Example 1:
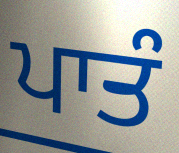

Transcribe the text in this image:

ਪਾਤੰ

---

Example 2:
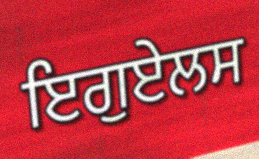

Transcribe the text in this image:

ਇਗੁਏਲਸ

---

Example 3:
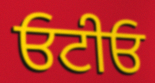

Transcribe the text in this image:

ਓਟੀਓ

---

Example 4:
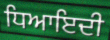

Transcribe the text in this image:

ਧਿਆਇਦੀ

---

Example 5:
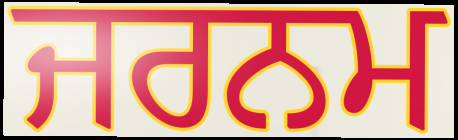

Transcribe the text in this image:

ਜਰਨਮ